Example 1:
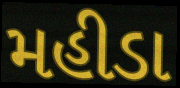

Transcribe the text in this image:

મહીડા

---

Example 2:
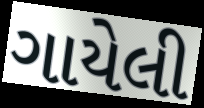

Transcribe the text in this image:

ગાયેલી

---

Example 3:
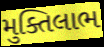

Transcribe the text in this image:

મુક્તિલાભ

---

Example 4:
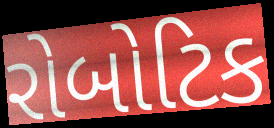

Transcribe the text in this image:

રોબોટિક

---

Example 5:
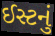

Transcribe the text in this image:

ઈસ્ટનું